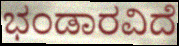
ಭಂಡಾರವಿದೆ